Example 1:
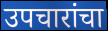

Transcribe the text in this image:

उपचारांचा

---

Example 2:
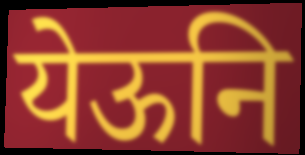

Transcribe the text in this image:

येऊनि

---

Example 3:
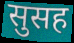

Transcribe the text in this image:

सुसह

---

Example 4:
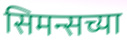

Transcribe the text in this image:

सिमन्सच्या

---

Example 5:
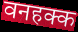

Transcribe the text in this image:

वनहक्क